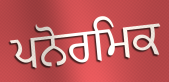
ਪਨੋਰਮਿਕ